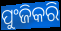
ପୁଂଜିକରି